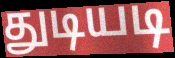
துடியடி